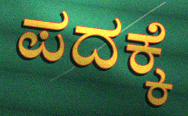
ಪದಕ್ಕೆ